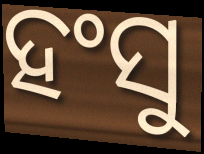
ହଂସୁ